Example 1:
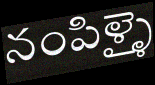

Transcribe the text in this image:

నంపిళ్ళై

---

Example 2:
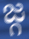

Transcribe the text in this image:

జ్గ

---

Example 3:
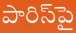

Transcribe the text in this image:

పారిస్‌పై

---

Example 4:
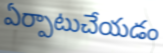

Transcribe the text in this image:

ఏర్పాటుచేయడం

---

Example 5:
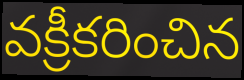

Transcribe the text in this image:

వక్రీకరించిన